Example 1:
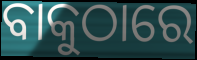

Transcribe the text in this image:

ବାକୁଠାରେ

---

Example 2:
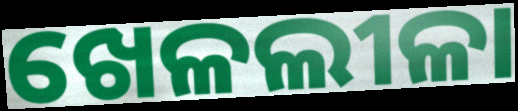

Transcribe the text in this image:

ଖେଳଲୀଳା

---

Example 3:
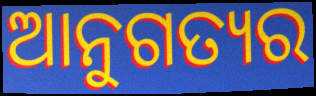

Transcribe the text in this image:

ଆନୁଗତ୍ୟର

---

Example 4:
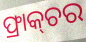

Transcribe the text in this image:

ଫ୍ରାକ୍‌ଚର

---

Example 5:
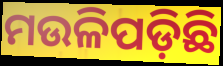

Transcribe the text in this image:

ମଉଳିପଡ଼ିଛି